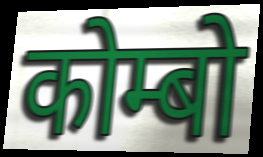
कोम्बो